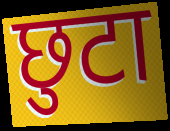
छुटा